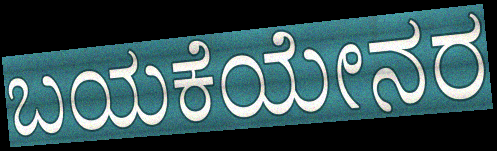
ಬಯಕೆಯೇನರ